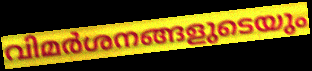
വിമർശനങ്ങളുടെയും